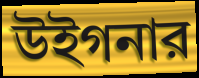
উইগনার